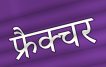
फ्रैक्चर